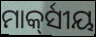
ମାର୍କ୍‍ସୀୟ